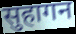
सुहागन